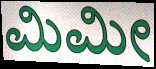
ಮಿಮೀ